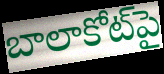
బాలాకోట్‌పై